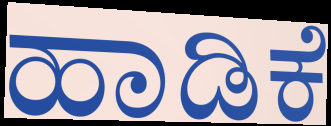
ಹಾಡಿಕೆ